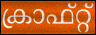
ക്രാഫ്റ്റ്